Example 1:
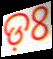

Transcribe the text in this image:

ଡ଼ଃ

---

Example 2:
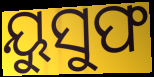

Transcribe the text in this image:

ୟୁସୁଫ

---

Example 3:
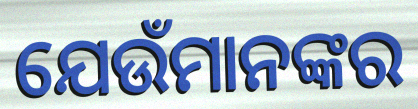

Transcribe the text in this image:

ଯେଉଁମାନଙ୍କର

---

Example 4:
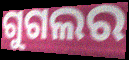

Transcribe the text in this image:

ଗୁଗଲର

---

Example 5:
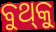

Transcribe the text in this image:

ବୁଥ୍‌କୁ